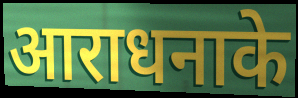
आराधनाके